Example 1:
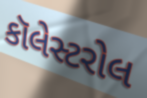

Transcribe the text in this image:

કૉલેસ્ટરોલ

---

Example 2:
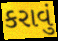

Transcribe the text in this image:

કરાવું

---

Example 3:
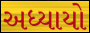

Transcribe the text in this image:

અધ્યાયો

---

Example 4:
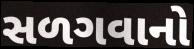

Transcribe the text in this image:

સળગવાનો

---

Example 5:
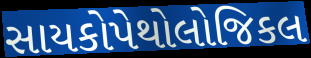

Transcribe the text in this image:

સાયકોપેથોલોજિકલ